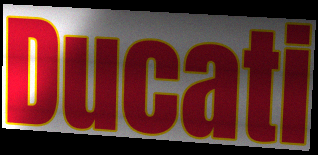
Ducati